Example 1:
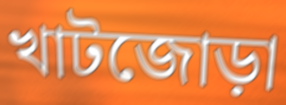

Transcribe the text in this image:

খাটজোড়া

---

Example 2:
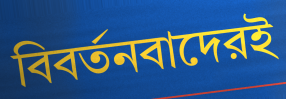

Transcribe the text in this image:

বিবর্তনবাদেরই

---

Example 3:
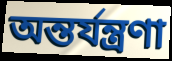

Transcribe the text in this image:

অন্তর্যন্ত্রণা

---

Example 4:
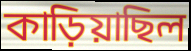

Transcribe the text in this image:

কাড়িয়াছিল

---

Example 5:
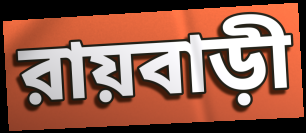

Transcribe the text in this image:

রায়বাড়ী